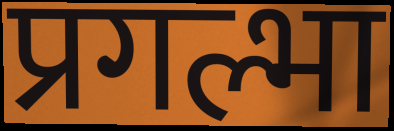
प्रगल्भा